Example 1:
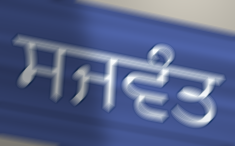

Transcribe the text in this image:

ਸਜਵੰਤ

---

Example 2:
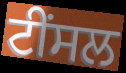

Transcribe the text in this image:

ਟੀਂਸਲ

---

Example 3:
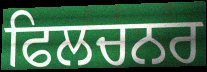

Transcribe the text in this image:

ਫਿਲਚਨਰ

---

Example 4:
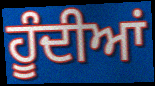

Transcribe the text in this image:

ਹੂੰਦੀਆਂ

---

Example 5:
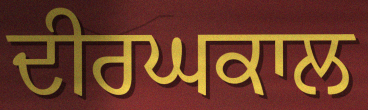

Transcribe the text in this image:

ਦੀਰਘਕਾਲ